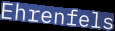
Ehrenfels